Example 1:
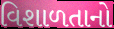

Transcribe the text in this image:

વિશાળતાનો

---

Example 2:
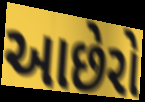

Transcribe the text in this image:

આછેરો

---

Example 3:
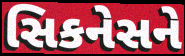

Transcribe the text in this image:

સિકનેસને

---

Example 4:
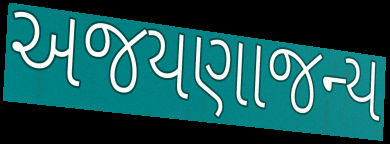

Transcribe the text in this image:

અજયણાજન્ય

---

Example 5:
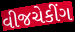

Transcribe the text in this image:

વીજચેકીંગ